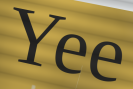
Yee